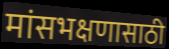
मांसभक्षणासाठी